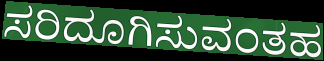
ಸರಿದೂಗಿಸುವಂತಹ